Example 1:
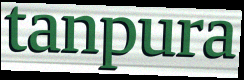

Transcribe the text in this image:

tanpura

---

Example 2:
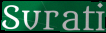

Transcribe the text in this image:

Surati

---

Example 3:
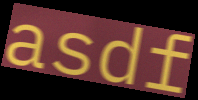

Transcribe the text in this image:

asdf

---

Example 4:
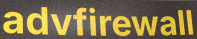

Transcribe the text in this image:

advfirewall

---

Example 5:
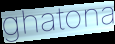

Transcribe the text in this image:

ghatona